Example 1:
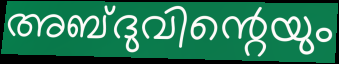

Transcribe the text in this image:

അബ്ദുവിന്റെയും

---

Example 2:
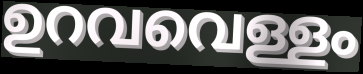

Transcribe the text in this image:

ഉറവവെള്ളം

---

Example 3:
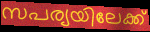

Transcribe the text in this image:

സപര്യയിലേക്ക്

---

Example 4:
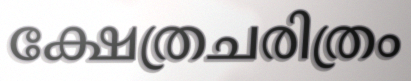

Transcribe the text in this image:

ക്ഷേത്രചരിത്രം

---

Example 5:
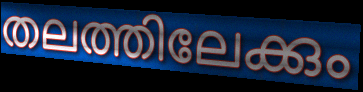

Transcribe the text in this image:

തലത്തിലേക്കും